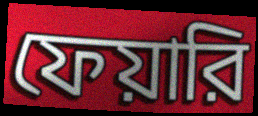
ফেয়ারি